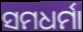
ସମଧର୍ମା